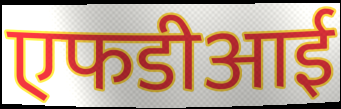
एफडीआई